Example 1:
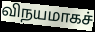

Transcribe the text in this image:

விநயமாகச்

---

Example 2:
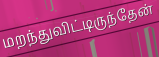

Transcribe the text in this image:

மறந்துவிட்டிருந்தேன்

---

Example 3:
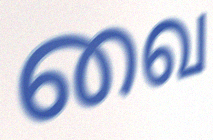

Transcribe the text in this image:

வை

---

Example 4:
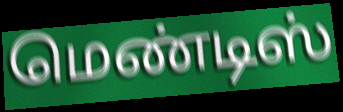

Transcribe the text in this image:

மெண்டிஸ்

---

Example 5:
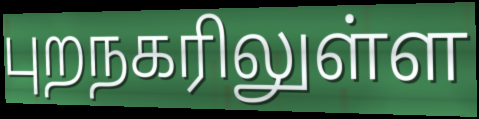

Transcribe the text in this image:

புறநகரிலுள்ள